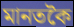
মানতকৈ